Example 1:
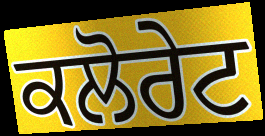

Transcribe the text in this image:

ਕਲੋਰੇਟ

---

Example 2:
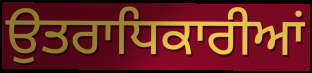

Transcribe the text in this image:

ਉਤਰਾਧਿਕਾਰੀਆਂ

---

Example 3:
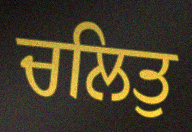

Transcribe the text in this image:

ਚਲਿਤੁ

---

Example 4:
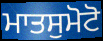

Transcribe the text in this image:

ਮਾਤਸੁਮੋਟੋ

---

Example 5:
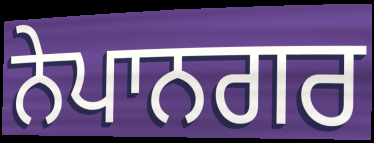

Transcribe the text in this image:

ਨੇਪਾਨਗਰ